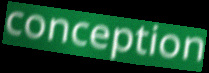
conception